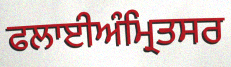
ਫਲਾਈਅੰਮ੍ਰਿਤਸਰ